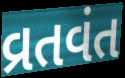
વ્રતવંત